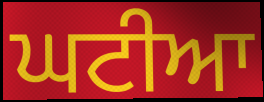
ਘਟੀਆ